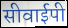
सीवाईपी